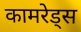
कामरेड्स